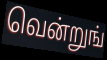
வென்றுங்